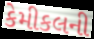
કેમીકલની